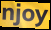
njoy